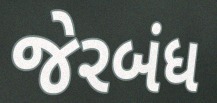
જેરબંધ